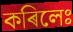
কৰিলেঃ